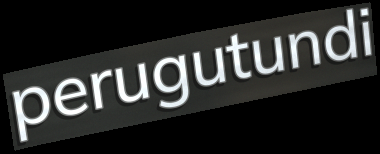
perugutundi